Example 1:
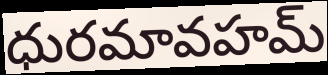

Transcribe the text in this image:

ధురమావహమ్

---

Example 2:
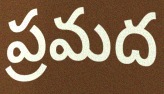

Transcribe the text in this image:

ప్రమద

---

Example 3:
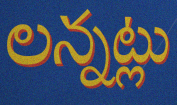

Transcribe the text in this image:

లన్నట్లు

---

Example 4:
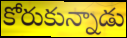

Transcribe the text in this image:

కోరుకున్నాడు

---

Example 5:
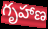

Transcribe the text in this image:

గృహాణ